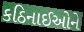
કઠિનાઈઓને